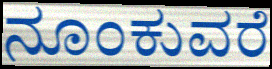
ನೂಂಕುವರೆ